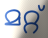
മറ്റ്